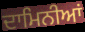
ਦਾਮਿਨੀਆਂ